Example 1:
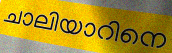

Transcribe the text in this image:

ചാലിയാറിനെ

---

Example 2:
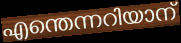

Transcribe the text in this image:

എന്തെന്നറിയാന്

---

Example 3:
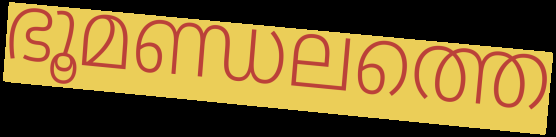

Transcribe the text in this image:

ഭൂമണ്ഡലത്തെ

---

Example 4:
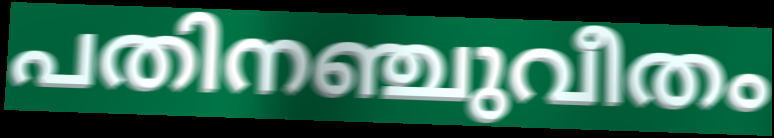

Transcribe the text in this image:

പതിനഞ്ചുവീതം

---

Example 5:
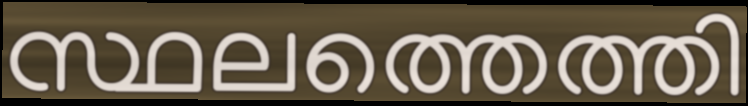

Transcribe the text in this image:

സ്ഥലത്തെത്തി